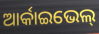
ଆର୍କାଇଭେଲ୍